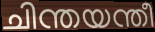
ചിന്തയന്തീ